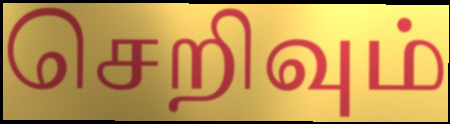
செறிவும்